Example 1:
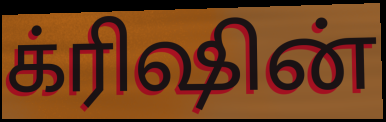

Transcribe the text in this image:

க்ரிஷின்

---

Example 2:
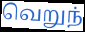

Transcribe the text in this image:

வெறுந்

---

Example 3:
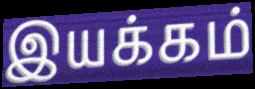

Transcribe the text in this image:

இயக்கம்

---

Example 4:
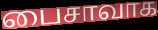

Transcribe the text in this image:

பைசாவாக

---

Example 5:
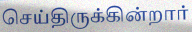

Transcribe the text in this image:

செய்திருக்கின்றார்